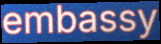
embassy